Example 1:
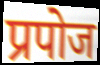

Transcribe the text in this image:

प्रपोज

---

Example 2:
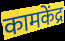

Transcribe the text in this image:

कामकेंद्र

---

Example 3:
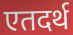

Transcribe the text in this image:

एतदर्थ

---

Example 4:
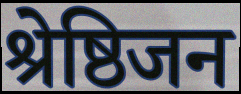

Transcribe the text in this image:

श्रेष्ठिजन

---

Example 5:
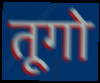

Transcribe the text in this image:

तूगो